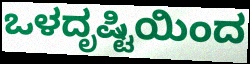
ಒಳದೃಷ್ಟಿಯಿಂದ